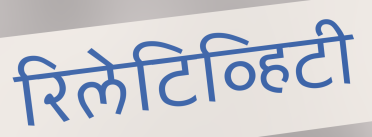
रिलेटिव्हिटी